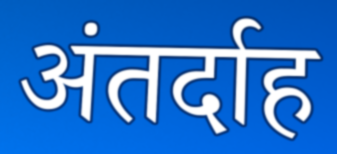
अंतर्दाह